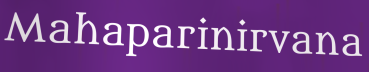
Mahaparinirvana